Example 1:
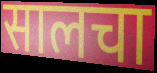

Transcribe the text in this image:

सालचा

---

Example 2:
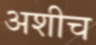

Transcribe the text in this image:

अशीच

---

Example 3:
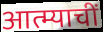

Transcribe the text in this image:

आत्म्याचीं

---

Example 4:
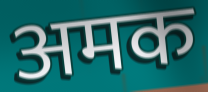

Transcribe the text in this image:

अमक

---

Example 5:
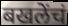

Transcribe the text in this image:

बखलेंचं